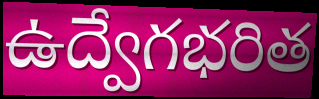
ఉద్వేగభరిత